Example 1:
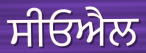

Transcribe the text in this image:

ਸੀਓਐਲ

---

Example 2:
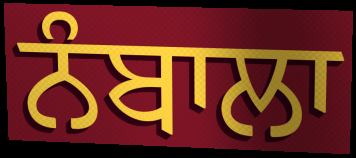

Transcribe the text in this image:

ਨੰਬਾਲਾ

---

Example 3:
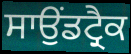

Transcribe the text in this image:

ਸਾਉਂਡਟ੍ਰੈਕ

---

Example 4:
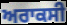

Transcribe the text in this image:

ਅਰਾਕਸੀ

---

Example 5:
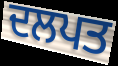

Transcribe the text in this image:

ਦਲਪਤ